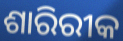
ଶାରିରୀକ